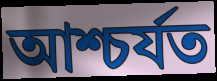
আশ্চৰ্যত